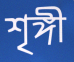
শৃঙ্গী